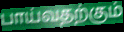
பாய்வதற்கும்